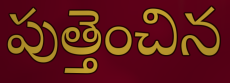
పుత్తెంచిన